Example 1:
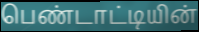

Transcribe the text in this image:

பெண்டாட்டியின்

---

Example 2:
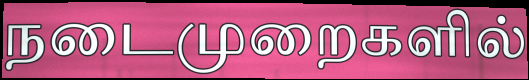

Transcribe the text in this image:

நடைமுறைகளில்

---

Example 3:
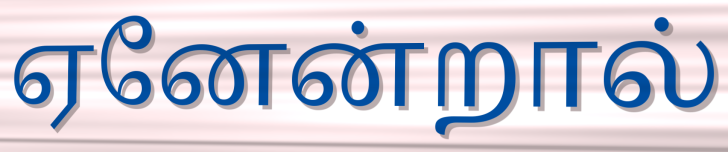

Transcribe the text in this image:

ஏனேன்றால்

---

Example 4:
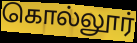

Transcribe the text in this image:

கொல்லூர்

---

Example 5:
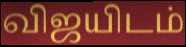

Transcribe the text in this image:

விஜயிடம்